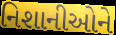
નિશાનીઓને